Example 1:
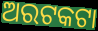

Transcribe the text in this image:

ଅରଟକଟା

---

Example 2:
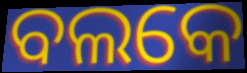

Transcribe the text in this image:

ବଲକେ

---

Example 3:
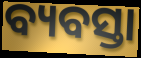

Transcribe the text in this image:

ବ୍ୟବସ୍ତା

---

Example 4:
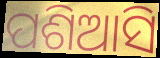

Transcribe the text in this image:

ପଶିଆସି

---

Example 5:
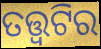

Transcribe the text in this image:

ତତ୍ତ୍ଵଟିର